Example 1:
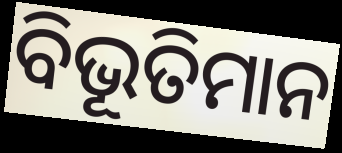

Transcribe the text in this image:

ବିଭୂତିମାନ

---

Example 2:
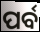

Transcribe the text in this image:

ପର୍ବ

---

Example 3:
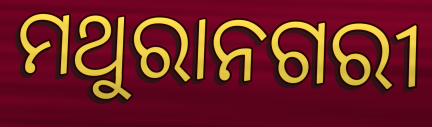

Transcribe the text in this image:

ମଥୁରାନଗରୀ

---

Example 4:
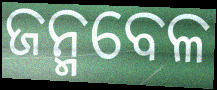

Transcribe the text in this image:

ଜନ୍ମବେଳ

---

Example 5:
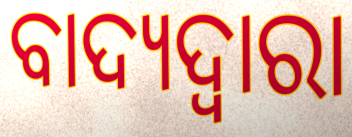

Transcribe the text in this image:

ବାଦ୍ୟଦ୍ୱାରା